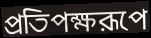
প্রতিপক্ষরূপে